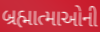
બ્રહ્માત્માઓની